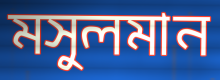
মসুলমান